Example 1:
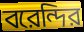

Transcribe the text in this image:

বরেন্দির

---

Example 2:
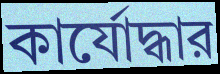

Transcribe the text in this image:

কার্যোদ্ধার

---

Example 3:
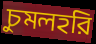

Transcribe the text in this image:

চুমলহরি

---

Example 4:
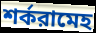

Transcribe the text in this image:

শর্করামেহ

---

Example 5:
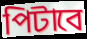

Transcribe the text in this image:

পিটাবে